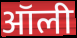
ऑली